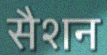
सैशन